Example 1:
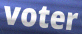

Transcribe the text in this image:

voter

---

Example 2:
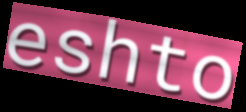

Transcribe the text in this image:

eshto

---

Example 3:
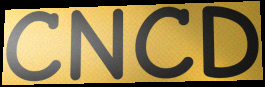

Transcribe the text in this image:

CNCD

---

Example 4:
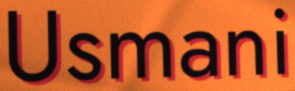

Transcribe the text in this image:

Usmani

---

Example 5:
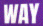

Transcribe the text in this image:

WAY